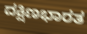
ದಕ್ಷಿಣಭಾರತ